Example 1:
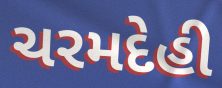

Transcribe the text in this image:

ચરમદેહી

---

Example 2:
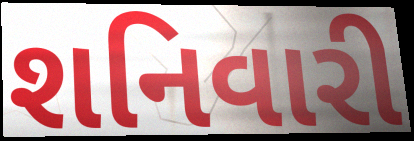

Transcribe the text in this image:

શનિવારી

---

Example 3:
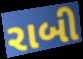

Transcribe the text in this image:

રાબી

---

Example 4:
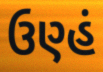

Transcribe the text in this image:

ઉણ્હં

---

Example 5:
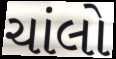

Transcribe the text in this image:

ચાંલો